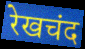
रेखचंद